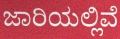
ಜಾರಿಯಲ್ಲಿವೆ